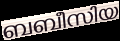
ബബീസിയ